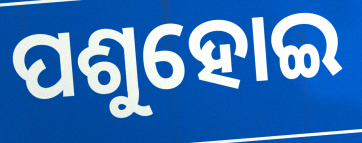
ପଶୁହୋଇ